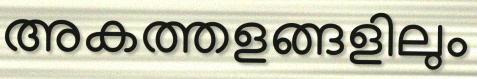
അകത്തളങ്ങളിലും